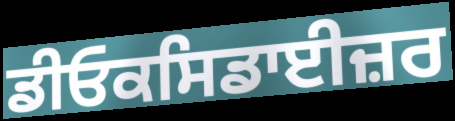
ਡੀਓਕਸਿਡਾਈਜ਼ਰ